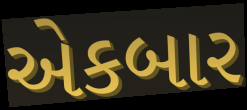
એકબાર